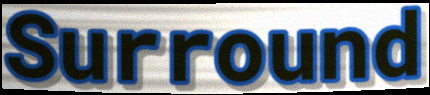
Surround